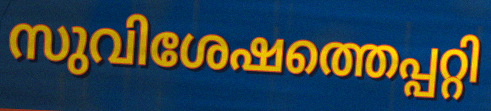
സുവിശേഷത്തെപ്പറ്റി